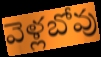
వెళ్లబోవు